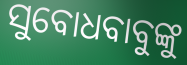
ସୁବୋଧବାବୁଙ୍କୁ